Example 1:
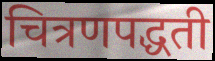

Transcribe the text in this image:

चित्रणपद्धती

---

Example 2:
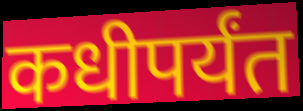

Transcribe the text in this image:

कधीपर्यंत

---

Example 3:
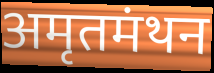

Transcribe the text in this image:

अमृतमंथन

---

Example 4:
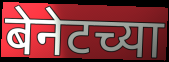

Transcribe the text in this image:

बेनेटच्या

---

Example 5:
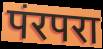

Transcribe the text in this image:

पंरपरा